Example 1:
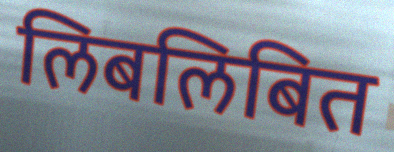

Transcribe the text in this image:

लिबलिबित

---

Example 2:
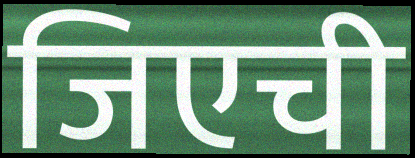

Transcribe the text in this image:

जिएची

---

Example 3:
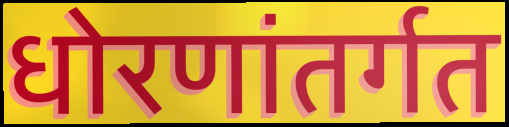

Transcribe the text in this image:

धोरणांतर्गत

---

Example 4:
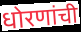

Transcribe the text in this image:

धोरणांची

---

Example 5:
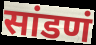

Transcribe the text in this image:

सांडणं